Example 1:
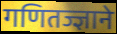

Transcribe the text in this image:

गणितज्ज्ञाने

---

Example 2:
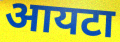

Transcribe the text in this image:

आयटा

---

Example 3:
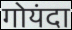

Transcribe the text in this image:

गोयंदा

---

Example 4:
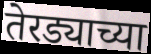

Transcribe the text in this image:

तेरड्याच्या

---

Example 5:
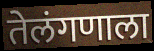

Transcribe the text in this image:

तेलंगणाला